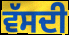
ਵੱਸਦੀ